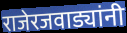
राजेरजवाड्यांनी